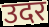
उदर